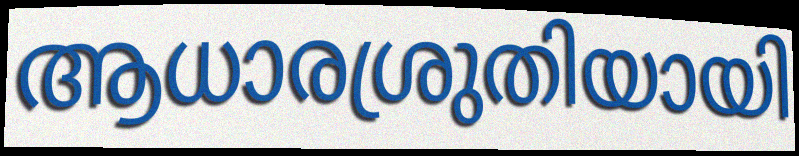
ആധാരശ്രുതിയായി